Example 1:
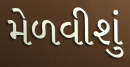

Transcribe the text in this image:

મેળવીશું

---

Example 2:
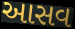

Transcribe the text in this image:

આસવ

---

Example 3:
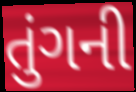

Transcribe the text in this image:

તુંગની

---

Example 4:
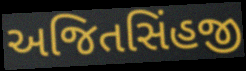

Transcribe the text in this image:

અજિતસિંહજી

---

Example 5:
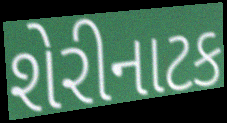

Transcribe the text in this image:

શેરીનાટક